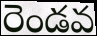
రెండవ